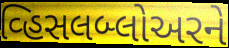
વ્હિસલબ્લોઅરને